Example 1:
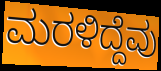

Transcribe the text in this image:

ಮರಳಿದ್ದೆವು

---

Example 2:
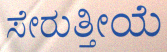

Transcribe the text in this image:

ಸೇರುತ್ತೀಯೆ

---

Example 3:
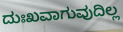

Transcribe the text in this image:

ದುಃಖವಾಗುವುದಿಲ್ಲ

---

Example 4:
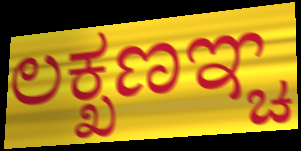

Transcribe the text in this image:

ಲಕ್ಖಣಞ್ಚ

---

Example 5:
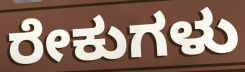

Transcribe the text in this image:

ರೇಕುಗಳು